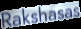
Rakshasas